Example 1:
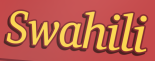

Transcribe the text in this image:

Swahili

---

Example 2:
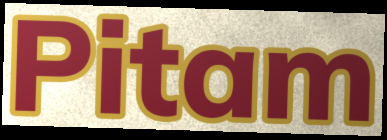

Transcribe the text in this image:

Pitam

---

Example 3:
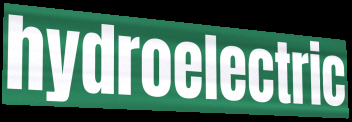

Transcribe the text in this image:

hydroelectric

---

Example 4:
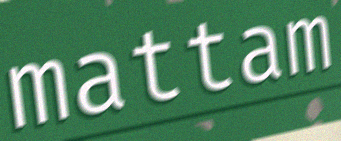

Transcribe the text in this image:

mattam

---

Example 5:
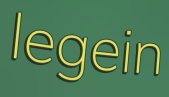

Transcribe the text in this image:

legein